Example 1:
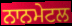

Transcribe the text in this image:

ਨਾਨਮੇਟਲ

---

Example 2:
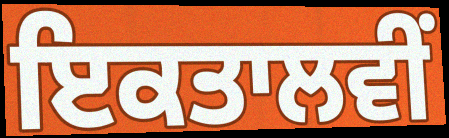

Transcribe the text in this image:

ਇਕਤਾਲਵੀਂ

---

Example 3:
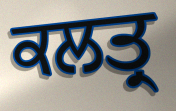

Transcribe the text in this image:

ਕਲਤ੍ਰ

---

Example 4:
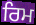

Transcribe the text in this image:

ਰਿਮ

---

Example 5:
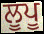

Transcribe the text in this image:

ਲੂਪੂ